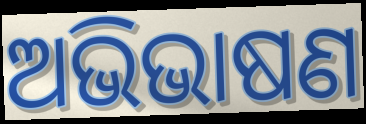
ଅଭିଭାଷଣ